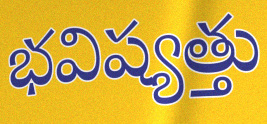
భవిష్యత్తు